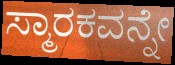
ಸ್ಮಾರಕವನ್ನೇ